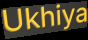
Ukhiya